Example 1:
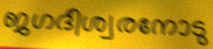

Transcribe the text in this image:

ജഗദീശ്വരനോടു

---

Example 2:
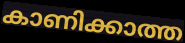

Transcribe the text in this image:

കാണിക്കാത്ത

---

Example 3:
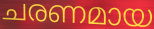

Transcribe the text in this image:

ചരണമായ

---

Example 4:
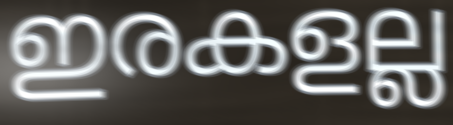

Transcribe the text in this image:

ഇരകളല്ല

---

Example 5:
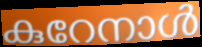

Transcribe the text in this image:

കുറേനാൾ